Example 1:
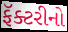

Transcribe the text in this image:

ફૅક્ટરીનો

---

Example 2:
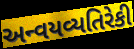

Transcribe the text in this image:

અન્વયવ્યતિરેકી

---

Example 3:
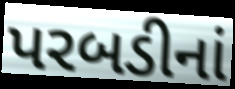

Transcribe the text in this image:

પરબડીનાં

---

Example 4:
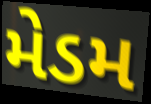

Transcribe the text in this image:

મેડમ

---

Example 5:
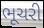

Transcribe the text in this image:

ભૂચરી